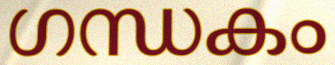
ഗന്ധകം